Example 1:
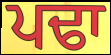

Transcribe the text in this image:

ਪਢਾ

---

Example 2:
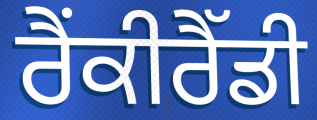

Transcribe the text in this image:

ਰੈਂਕੀਰੈੱਡੀ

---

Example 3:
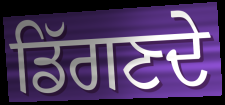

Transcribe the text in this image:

ਡਿੱਗਣਦੇ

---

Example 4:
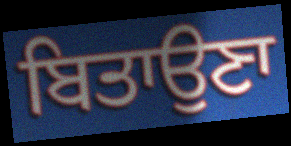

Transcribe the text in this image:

ਬਿਤਾਉਣਾ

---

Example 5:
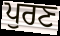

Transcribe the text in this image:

ਪੁਰਣ